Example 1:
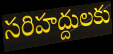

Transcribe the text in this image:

సరిహద్దులకు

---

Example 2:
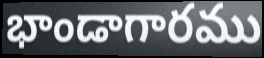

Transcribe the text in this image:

భాండాగారము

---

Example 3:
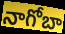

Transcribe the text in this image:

నాగోబా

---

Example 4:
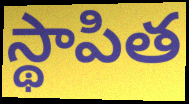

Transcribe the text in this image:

స్థాపిత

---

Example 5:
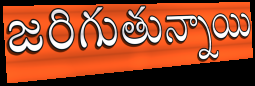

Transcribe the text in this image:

జరిగుతున్నాయి